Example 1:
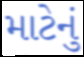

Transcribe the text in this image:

માટેનું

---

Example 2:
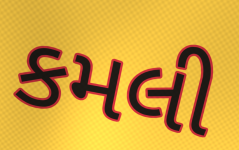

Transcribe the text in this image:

કમલી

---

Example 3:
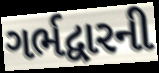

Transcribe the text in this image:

ગર્ભદ્વારની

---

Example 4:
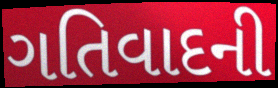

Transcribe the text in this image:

ગતિવાદની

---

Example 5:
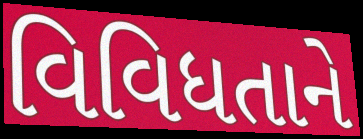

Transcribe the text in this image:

વિવિધતાને